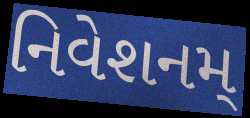
નિવેશનમ્